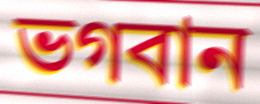
ভগবান